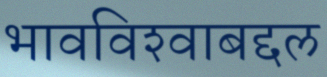
भावविश्वाबद्दल